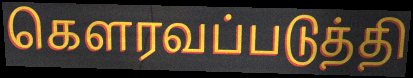
கெளரவப்படுத்தி